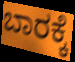
ಬಾರಕ್ಕೆ